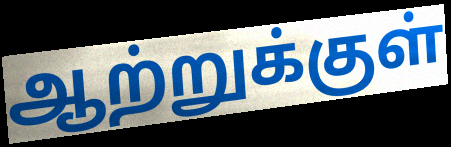
ஆற்றுக்குள்